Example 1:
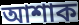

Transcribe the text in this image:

আশাক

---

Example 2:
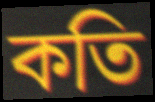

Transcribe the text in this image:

কতি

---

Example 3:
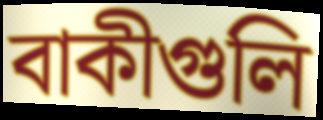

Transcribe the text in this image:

বাকীগুলি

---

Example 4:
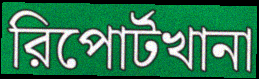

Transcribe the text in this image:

রিপোর্টখানা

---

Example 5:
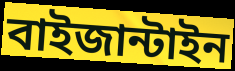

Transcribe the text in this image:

বাইজান্টাইন